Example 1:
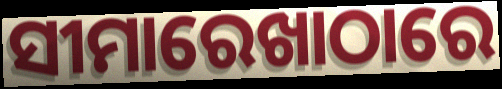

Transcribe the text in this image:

ସୀମାରେଖାଠାରେ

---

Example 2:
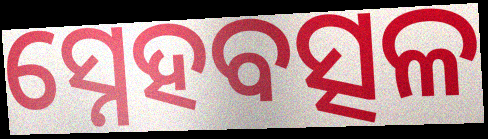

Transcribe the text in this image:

ସ୍ନେହବତ୍ସଳ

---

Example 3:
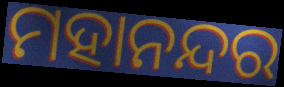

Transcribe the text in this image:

ମହାନନ୍ଦର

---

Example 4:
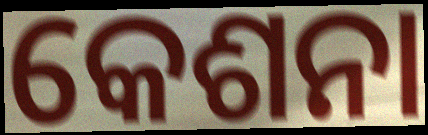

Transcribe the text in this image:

କେଶନା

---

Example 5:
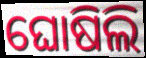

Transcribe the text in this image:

ଘୋଷିଲି